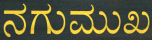
ನಗುಮುಖ